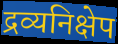
द्रव्यनिक्षेप